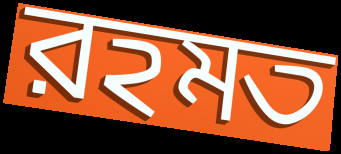
রহমত